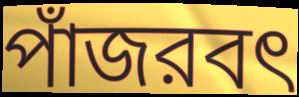
পাঁজরবৎ